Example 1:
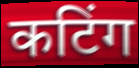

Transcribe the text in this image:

कटिंग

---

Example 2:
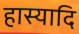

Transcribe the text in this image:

हास्यादि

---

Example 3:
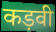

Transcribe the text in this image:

कड़वी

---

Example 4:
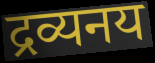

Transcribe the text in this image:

द्रव्यनय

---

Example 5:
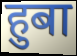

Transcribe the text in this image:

हुबा